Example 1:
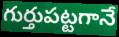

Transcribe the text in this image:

గుర్తుపట్టగానే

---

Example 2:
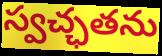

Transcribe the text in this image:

స్వచ్ఛతను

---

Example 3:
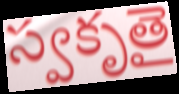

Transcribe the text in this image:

స్వకృతై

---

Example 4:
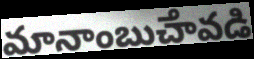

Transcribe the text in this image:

మానాంబుౘావడి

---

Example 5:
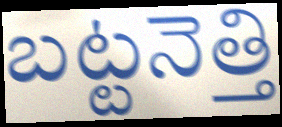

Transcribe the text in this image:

బట్టనెత్తి